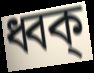
ধ্বক্